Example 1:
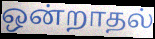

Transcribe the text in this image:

ஒன்றாதல்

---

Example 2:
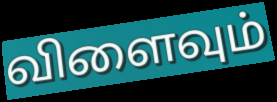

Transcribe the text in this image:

விளைவும்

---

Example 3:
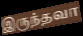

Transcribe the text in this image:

இருந்தவா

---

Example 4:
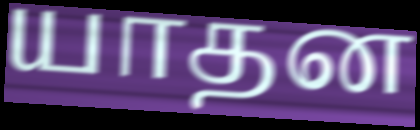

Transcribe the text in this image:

யாதன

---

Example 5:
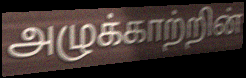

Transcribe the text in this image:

அழுக்காற்றின்